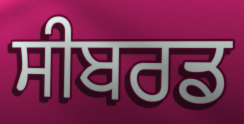
ਸੀਬਰਡ